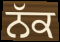
ਨੱਕ